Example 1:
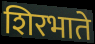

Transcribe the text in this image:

शिरभाते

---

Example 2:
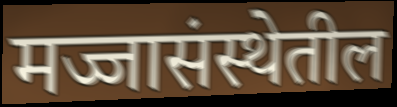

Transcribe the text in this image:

मज्जासंस्थेतील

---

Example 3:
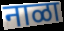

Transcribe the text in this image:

नाळा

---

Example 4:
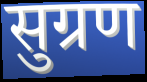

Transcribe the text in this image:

सुग्रण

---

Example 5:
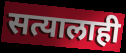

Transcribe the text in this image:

सत्यालाही